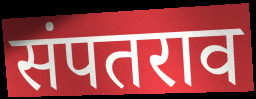
संपतराव